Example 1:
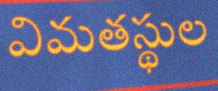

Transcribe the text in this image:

విమతస్థుల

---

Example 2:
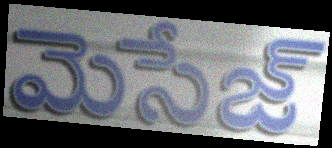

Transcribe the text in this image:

మెసేజ్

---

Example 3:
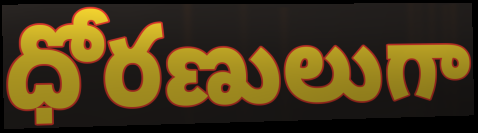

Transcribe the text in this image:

ధోరణులుగా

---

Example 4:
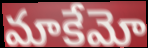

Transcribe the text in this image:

మాకేమో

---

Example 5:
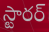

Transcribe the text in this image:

స్టారర్